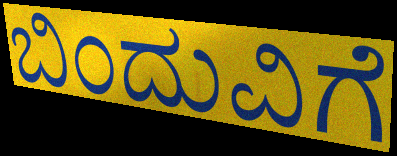
ಬಿಂದುವಿಗೆ